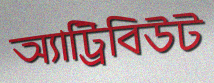
অ্যাট্রিবিউট